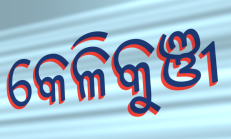
କେଳିକୁଞ୍ଜ